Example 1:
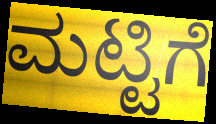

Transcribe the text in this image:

ಮಟ್ಟಿಗೆ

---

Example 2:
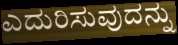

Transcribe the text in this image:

ಎದುರಿಸುವುದನ್ನು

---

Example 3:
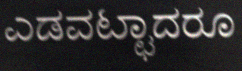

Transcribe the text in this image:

ಎಡವಟ್ಟಾದರೂ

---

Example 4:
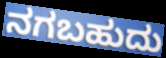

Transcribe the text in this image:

ನಗಬಹುದು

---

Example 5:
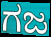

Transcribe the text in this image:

ಗಜ